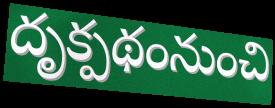
దృక్పథంనుంచి